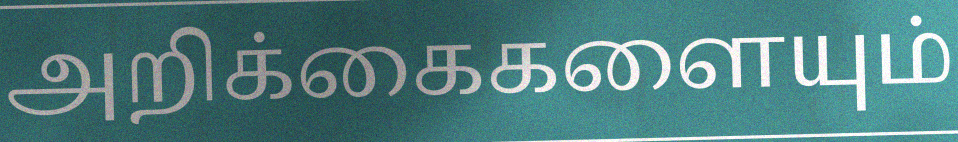
அறிக்கைகளையும்